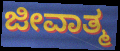
ಜೀವಾತ್ಮ